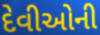
દેવીઓની